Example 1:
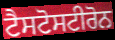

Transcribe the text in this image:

ਟੈਸਟੋਸਟੀਰੋਨ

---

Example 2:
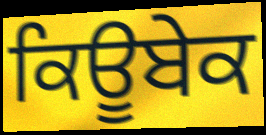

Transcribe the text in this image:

ਕਿਊਬੇਕ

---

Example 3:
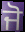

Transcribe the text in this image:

ਜੋ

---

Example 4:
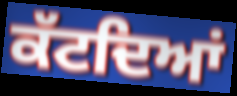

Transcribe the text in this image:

ਕੱਟਦਿਆਂ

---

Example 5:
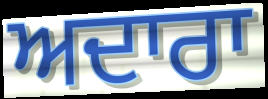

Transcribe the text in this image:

ਅਦਾਰਾ